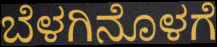
ಬೆಳಗಿನೊಳಗೆ